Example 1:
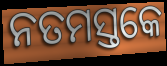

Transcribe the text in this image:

ନତମସ୍ତକେ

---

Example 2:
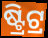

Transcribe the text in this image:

ଷ୍ଟ୍ରିଟ୍ର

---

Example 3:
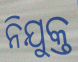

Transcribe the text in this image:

ନିଯୁକ୍ତ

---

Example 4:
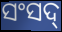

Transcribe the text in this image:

ସଂସଦ୍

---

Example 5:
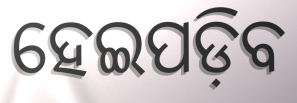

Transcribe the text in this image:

ହେଇପଡ଼ିବ